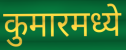
कुमारमध्ये